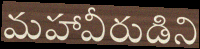
మహావీరుడిని